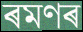
ৰমণৰ